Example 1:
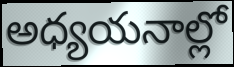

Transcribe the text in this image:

అధ్యయనాల్లో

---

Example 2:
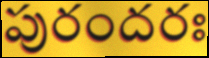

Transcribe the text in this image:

పురందరః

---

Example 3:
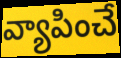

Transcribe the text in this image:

వ్యాపించే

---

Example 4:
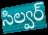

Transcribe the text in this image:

సిల్వర్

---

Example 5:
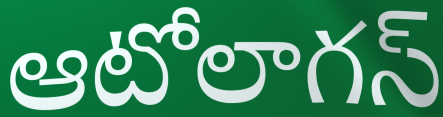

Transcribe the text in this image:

ఆటోలాగస్